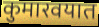
कुमारवयात